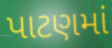
પાટણમાં